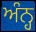
ਅੰਨ੍ਹ